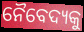
ନୈବେଦ୍ୟକୁ